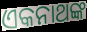
ଏକନାଥଙ୍କ